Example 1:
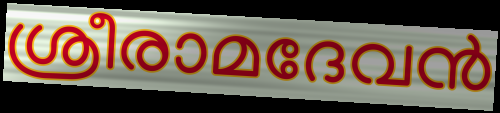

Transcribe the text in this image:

ശ്രീരാമദേവൻ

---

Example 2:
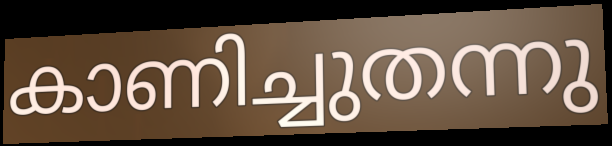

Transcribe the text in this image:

കാണിച്ചുതന്നു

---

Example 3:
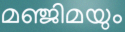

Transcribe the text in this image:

മഞ്ജിമയും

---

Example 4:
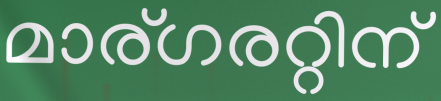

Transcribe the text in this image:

മാര്ഗരറ്റിന്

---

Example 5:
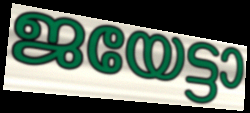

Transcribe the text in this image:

ജയേട്ടാ